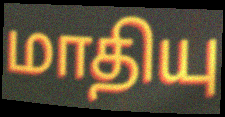
மாதியு